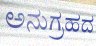
ಅನುಗ್ರಹದ